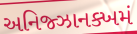
અનિજ્ઝાનક્ખમં